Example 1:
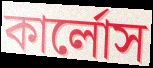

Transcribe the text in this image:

কার্লোস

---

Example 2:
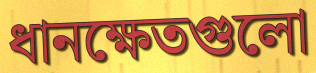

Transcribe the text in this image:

ধানক্ষেতগুলো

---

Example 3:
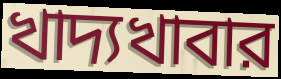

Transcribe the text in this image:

খাদ্যখাবার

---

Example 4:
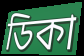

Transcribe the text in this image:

ডিকা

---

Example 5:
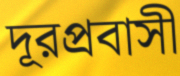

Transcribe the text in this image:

দূরপ্রবাসী